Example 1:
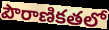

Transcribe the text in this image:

పౌరాణికతలో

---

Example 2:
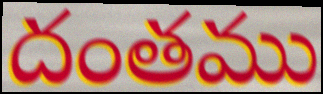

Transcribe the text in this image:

దంతము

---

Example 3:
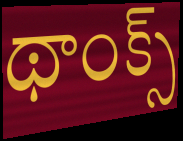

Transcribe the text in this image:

థాంక్స్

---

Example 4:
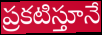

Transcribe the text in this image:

ప్రకటిస్తూనే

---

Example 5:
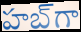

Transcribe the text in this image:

హబ్‌గా